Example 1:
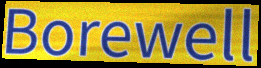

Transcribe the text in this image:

Borewell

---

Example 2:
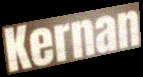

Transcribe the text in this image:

Kernan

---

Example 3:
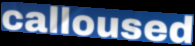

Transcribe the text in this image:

calloused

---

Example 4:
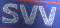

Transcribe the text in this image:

SVV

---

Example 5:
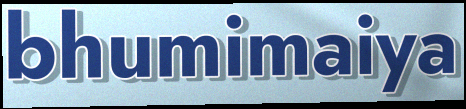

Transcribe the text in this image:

bhumimaiya